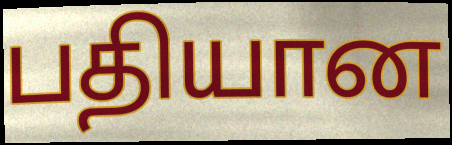
பதியான